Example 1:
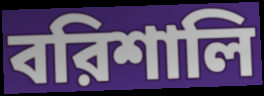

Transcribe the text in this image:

বরিশালি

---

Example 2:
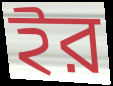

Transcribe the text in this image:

ইর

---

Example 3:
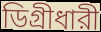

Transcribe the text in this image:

ডিগ্রীধারী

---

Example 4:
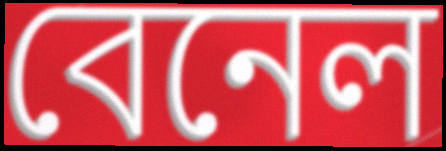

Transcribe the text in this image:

বেনেল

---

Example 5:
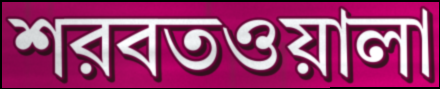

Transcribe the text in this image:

শরবতওয়ালা